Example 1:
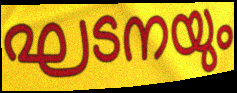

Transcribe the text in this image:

ഘടനയും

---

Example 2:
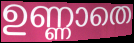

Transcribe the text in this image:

ഉണ്ണാതെ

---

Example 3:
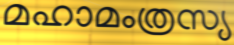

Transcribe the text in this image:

മഹാമംത്രസ്യ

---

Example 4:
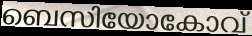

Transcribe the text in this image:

ബെസിയോകോവ്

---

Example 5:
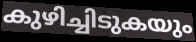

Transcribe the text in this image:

കുഴിച്ചിടുകയും